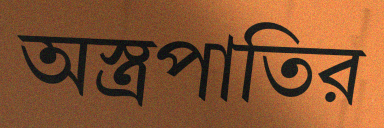
অস্ত্রপাতির